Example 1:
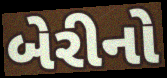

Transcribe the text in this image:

બેરીનો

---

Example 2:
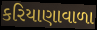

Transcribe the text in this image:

કરિયાણાવાળા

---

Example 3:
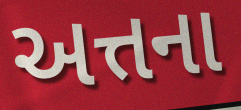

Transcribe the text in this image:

અત્તના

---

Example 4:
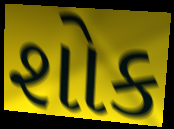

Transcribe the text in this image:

શોક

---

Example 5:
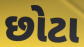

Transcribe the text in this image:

છોટા